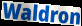
Waldron